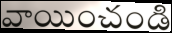
వాయించండి